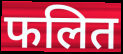
फलित